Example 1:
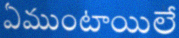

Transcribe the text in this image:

ఏముంటాయిలే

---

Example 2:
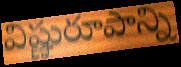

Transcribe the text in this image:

విష్ణురూపాన్ని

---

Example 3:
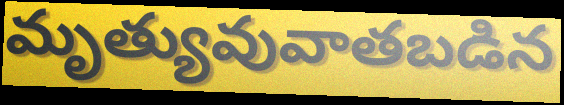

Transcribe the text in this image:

మృత్యువువాతబడిన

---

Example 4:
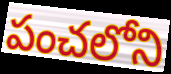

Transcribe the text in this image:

పంచలోని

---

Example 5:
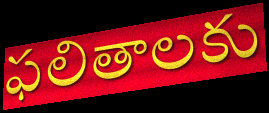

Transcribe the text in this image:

ఫలితాలకు